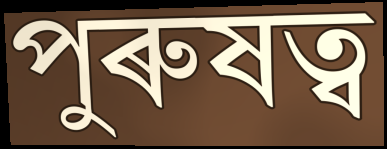
পুৰুষত্ব